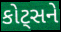
કોટ્સને